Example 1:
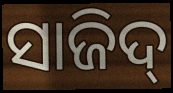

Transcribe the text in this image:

ସାଜିଦ୍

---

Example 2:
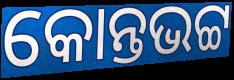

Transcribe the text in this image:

କୋନ୍ତଭଟ୍ଟ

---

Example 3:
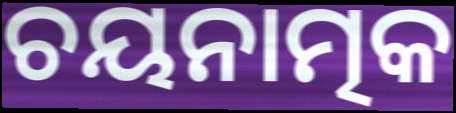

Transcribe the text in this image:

ଚୟନାତ୍ମକ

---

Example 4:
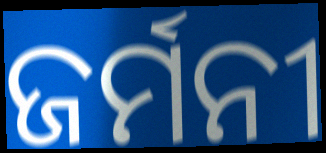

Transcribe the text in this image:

ଜର୍ମନୀ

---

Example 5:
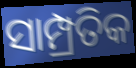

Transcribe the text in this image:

ସାମ୍ପ୍ରତିକ